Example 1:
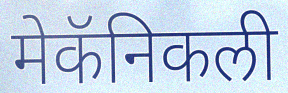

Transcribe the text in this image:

मेकॅनिकली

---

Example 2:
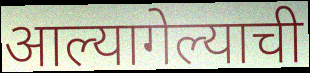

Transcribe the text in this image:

आल्यागेल्याची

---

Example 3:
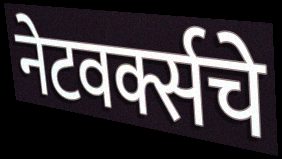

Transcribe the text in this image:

नेटवर्क्सचे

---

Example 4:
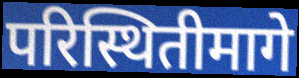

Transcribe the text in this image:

परिस्थितीमागे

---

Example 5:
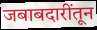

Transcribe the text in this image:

जबाबदारींतून